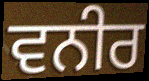
ਵਨੀਰ